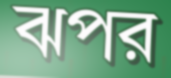
ঝপর